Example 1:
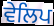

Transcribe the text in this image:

ਵੇਲਿਪ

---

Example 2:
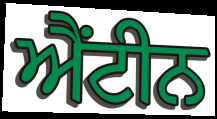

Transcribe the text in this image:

ਐਂਟੀਨ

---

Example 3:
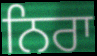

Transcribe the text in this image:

ਨਿਰਾ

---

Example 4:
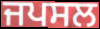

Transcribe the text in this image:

ਜਪਸਲ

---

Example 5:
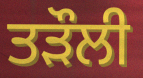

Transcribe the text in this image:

ਤੜੌਲੀ